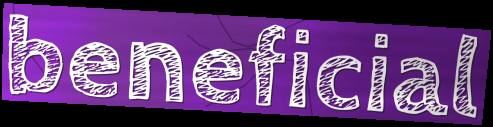
beneficial